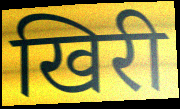
खिरी